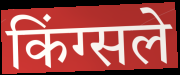
किंग्सले